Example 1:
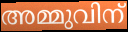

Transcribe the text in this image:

അമ്മുവിന്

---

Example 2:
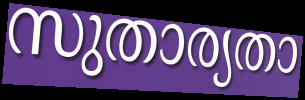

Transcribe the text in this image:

സുതാര്യതാ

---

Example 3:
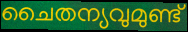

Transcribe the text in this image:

ചൈതന്യവുമുണ്ട്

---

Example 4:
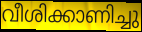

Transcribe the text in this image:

വീശിക്കാണിച്ചു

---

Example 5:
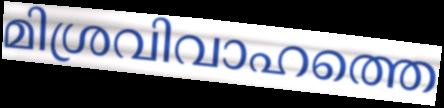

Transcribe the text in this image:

മിശ്രവിവാഹത്തെ